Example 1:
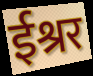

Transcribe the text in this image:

ईश्रर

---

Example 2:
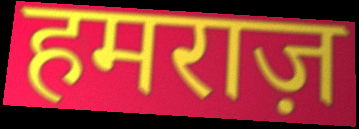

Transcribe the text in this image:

हमराज़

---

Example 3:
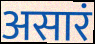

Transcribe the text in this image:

असारं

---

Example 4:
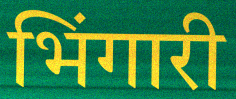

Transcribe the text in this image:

भिंगारी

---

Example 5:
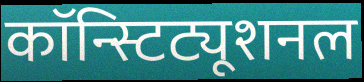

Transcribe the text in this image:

कॉन्स्टिट्यूशनल